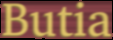
Butia